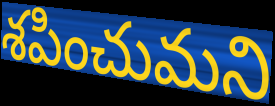
శపించుమని